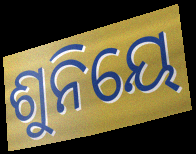
ଶୁନିୟେ